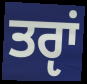
ਤਰੵਾਂ